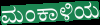
ಮಂಕಾಳಿಯ